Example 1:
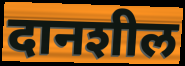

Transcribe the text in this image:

दानशील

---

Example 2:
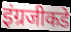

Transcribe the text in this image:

इंग्रजीकडे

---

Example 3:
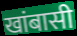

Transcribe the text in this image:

खांबासी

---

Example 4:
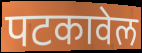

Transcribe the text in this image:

पटकावेल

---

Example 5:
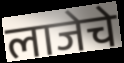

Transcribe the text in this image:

लाजेचे